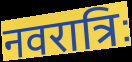
नवरात्रिः